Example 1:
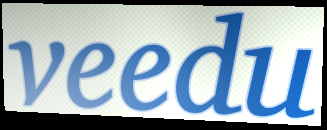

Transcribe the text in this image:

veedu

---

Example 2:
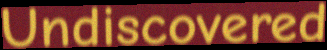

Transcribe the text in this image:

Undiscovered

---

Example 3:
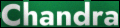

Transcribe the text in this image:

Chandra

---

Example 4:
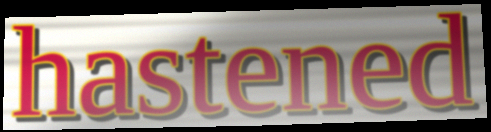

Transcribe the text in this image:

hastened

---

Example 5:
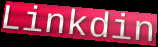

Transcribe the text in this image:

Linkdin